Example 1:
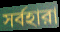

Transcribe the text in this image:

সর্বহারা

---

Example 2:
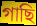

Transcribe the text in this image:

গাছি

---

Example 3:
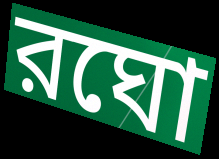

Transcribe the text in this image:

রঘো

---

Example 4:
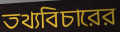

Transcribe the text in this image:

তথ্যবিচারের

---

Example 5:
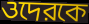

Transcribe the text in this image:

ওদেরকে